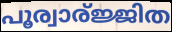
പൂര്വാര്ജ്ജിത